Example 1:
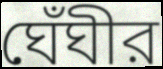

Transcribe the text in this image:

ঘেঁঘীর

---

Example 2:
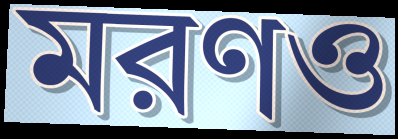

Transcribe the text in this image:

মরণও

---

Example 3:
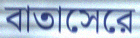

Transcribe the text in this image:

বাতাসেরে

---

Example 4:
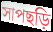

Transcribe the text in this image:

সাপছড়ি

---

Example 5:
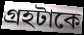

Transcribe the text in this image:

গ্রহটাকে